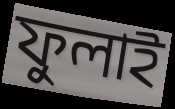
ফুলাই